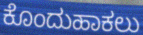
ಕೊಂದುಹಾಕಲು